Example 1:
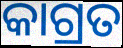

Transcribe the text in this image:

କାଗ୍ରତ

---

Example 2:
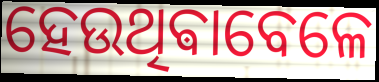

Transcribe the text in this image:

ହେଉଥିଵାବେଳେ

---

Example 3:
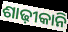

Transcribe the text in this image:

ଶାଢ଼ୀକାନି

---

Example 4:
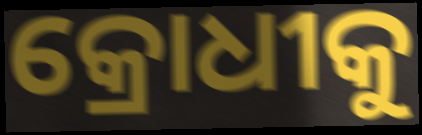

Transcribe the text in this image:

କ୍ରୋଧୀକୁ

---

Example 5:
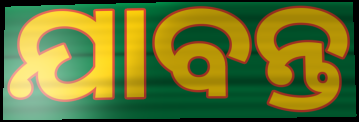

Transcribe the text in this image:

ଯାବନ୍ତ